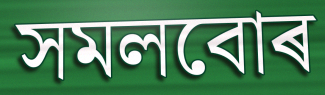
সমলবোৰ